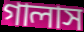
গালাস